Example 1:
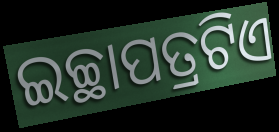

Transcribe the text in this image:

ଇଚ୍ଛାପତ୍ରଟିଏ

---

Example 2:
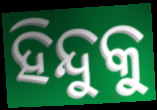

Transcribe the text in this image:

ହିନ୍ଦୁକୁ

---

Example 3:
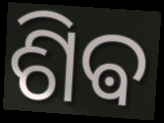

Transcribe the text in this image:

ଶିଵ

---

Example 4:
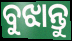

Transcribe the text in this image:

ବୁଝାନ୍ତୁ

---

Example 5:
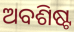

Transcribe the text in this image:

ଅବଶିଷ୍ଟ